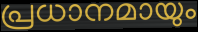
പ്രധാനമായും